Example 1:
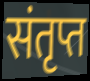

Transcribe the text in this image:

संतृप्त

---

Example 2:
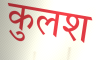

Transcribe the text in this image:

कुलश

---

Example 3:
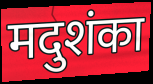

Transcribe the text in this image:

मदुशंका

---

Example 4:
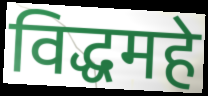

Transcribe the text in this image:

विद्धमहे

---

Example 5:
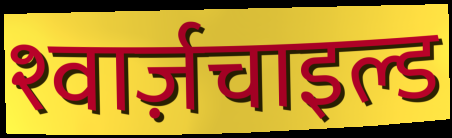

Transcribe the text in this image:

श्वार्ज़चाइल्ड